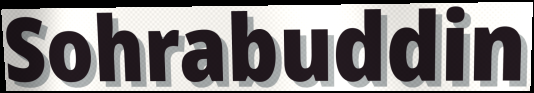
Sohrabuddin